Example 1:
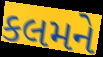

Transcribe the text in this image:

કલમને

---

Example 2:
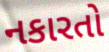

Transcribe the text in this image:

નકારતો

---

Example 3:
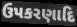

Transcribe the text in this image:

ઉપકરણાદિ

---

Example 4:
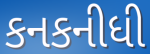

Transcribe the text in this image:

કનકનીધી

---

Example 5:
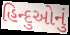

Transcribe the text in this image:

હિન્દુઓનું